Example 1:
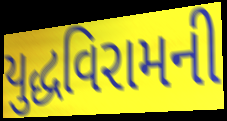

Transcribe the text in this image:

યુદ્ધવિરામની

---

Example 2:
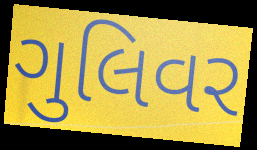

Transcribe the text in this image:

ગુલિવર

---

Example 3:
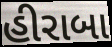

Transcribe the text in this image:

હીરાબા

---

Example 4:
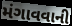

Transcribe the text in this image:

મંગાવવાની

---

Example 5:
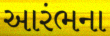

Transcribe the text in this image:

આરંભના